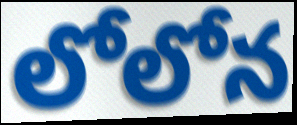
లోలోన